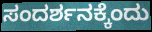
ಸಂದರ್ಶನಕ್ಕೆಂದು